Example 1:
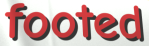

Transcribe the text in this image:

footed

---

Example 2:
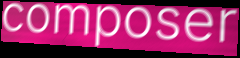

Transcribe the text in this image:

composer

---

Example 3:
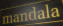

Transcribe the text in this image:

mandala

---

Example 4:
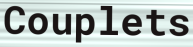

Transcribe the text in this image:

Couplets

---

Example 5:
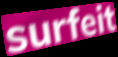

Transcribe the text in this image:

surfeit